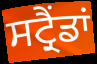
ਸਟ੍ਰੈਂਡਾਂ